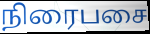
நிரைபசை